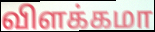
விளக்கமா